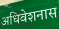
अधिवेशनास